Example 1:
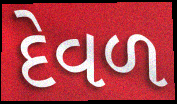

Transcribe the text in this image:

દેવળ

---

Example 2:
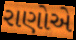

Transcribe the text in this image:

રાણોએ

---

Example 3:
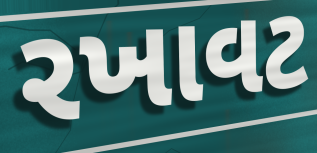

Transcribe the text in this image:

રખાવટ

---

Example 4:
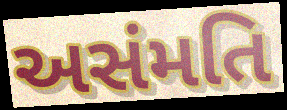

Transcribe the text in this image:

અસંમતિ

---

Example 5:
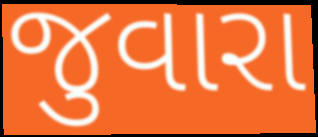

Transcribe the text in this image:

જુવારા